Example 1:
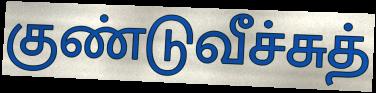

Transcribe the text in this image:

குண்டுவீச்சுத்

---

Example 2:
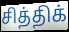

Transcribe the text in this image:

சித்திக்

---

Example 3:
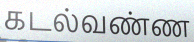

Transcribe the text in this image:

கடல்வண்ண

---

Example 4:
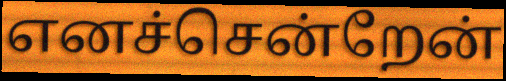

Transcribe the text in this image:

எனச்சென்றேன்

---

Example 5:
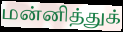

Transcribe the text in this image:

மன்னித்துக்